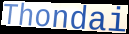
Thondai